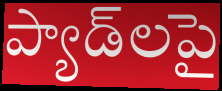
ప్యాడ్‌లపై